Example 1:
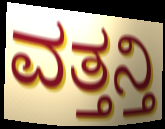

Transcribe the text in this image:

ವತ್ತನ್ತಿ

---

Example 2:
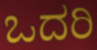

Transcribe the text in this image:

ಒದರಿ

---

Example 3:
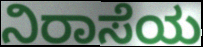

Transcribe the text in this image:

ನಿರಾಸೆಯ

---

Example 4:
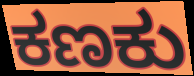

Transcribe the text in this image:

ಕಣಕು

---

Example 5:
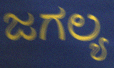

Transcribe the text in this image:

ಜಗಲ್ಯ